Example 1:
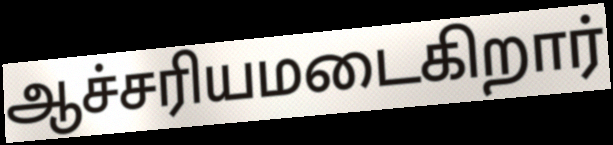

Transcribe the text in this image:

ஆச்சரியமடைகிறார்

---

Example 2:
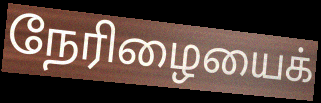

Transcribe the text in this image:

நேரிழையைக்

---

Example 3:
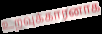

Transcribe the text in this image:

உறவுக்காரனாக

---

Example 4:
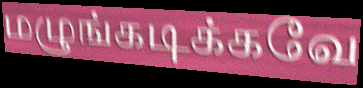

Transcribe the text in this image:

மழுங்கடிக்கவே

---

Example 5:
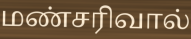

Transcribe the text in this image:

மண்சரிவால்